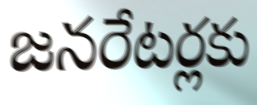
జనరేటర్లకు